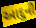
આદુની